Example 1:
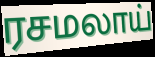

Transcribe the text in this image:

ரசமலாய்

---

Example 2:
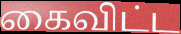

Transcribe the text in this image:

கைவிட்ட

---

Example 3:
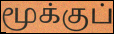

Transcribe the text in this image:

மூக்குப்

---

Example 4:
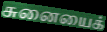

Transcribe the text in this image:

சுனையைக்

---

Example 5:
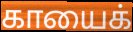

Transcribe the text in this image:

காயைக்